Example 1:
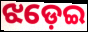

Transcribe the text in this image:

ଝଡ଼େଇ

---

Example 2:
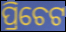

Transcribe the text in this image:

ପ୍ରିଚେଟ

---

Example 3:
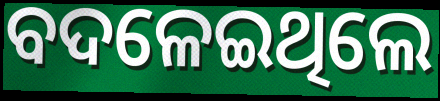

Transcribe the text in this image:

ବଦଳେଇଥିଲେ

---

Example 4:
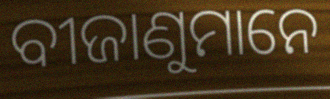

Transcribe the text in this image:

ବୀଜାଣୁମାନେ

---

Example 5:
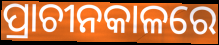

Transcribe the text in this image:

ପ୍ରାଚୀନକାଳରେ